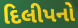
દિલીપનો